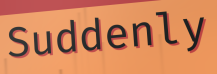
Suddenly